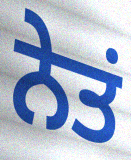
ਨੇਤਂ